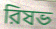
রিষভ